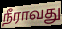
நீராவது